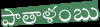
పాతాళంబు